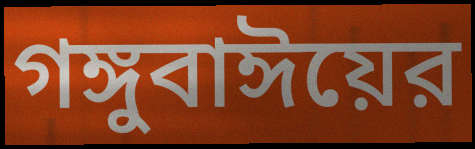
গঙ্গুবাঈয়ের